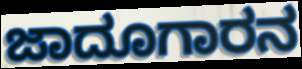
ಜಾದೂಗಾರನ